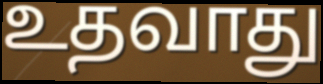
உதவாது